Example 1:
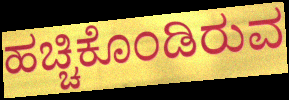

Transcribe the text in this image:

ಹಚ್ಚಿಕೊಂಡಿರುವ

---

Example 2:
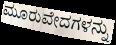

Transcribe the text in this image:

ಮೂರುವೇದಗಳನ್ನು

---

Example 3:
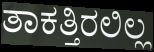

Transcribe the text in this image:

ತಾಕತ್ತಿರಲಿಲ್ಲ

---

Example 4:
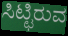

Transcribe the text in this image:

ಸಿಟ್ಟಿರುವ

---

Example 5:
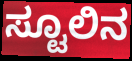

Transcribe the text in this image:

ಸ್ಟೂಲಿನ